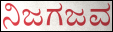
ನಿಜಗಜವ